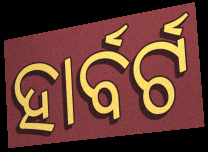
ହାର୍ବର୍ଟ